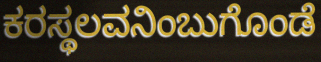
ಕರಸ್ಥಲವನಿಂಬುಗೊಂಡೆ